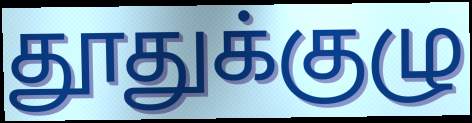
தூதுக்குழு